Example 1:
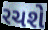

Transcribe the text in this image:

રચશે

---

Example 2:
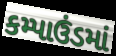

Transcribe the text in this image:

કમ્પાઉંડમાં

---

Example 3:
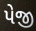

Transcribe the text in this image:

પેજી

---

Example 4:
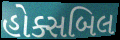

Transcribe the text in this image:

હોક્સબિલ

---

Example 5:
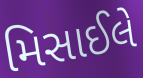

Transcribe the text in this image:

મિસાઈલે